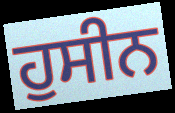
ਹੁਸੀਨ